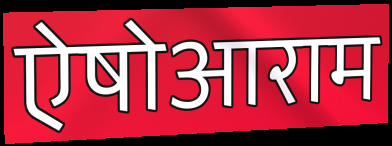
ऐषोआराम